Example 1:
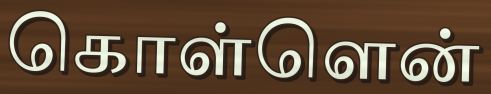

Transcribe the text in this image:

கொள்ளென்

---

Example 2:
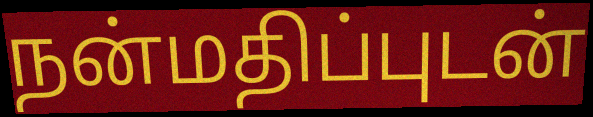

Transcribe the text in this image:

நன்மதிப்புடன்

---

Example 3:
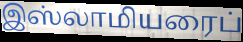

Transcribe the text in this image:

இஸ்லாமியரைப்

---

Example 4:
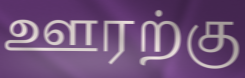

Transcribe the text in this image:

ஊரற்கு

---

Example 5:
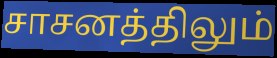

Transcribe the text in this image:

சாசனத்திலும்